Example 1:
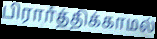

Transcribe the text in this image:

பிரார்த்திக்காமல்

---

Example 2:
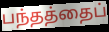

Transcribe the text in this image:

பந்தத்தைப்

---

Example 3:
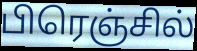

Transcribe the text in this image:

பிரெஞ்சில்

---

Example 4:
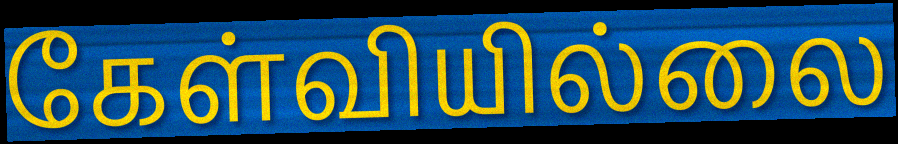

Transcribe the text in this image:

கேள்வியில்லை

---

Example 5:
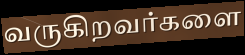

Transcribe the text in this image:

வருகிறவர்களை